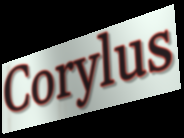
Corylus